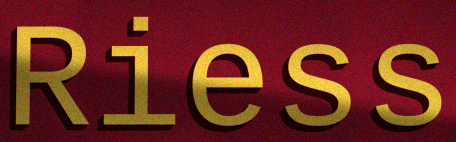
Riess